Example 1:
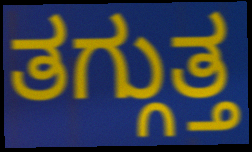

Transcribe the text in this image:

ತಗ್ಗುತ್ತ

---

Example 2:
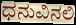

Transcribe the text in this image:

ಧನುವಿನಲಿ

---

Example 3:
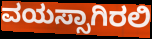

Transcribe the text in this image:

ವಯಸ್ಸಾಗಿರಲಿ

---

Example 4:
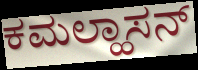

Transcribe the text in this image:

ಕಮಲ್ಹಾಸನ್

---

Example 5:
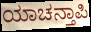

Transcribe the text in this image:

ಯಾಚನ್ತಾಪಿ